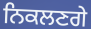
ਨਿਕਲਣਗੇ